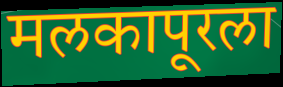
मलकापूरला